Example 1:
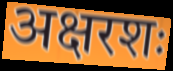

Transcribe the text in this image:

अक्षरशः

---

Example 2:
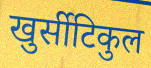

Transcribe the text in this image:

खुर्सीटिकुल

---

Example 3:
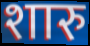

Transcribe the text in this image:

शारु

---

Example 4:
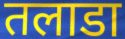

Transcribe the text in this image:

तलाडा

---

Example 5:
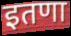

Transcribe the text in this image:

इतणा